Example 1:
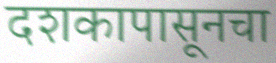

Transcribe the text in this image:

दशकापासूनचा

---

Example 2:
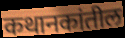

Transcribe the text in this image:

कथानकांतील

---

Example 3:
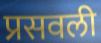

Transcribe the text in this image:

प्रसवली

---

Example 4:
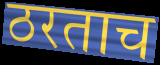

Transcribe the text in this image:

ठरताच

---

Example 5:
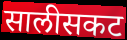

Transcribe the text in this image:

सालीसकट